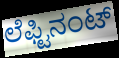
ಲೆಫ್ಟಿನಂಟ್